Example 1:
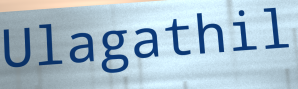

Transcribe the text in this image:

Ulagathil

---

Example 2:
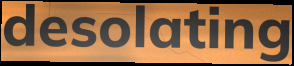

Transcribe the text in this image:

desolating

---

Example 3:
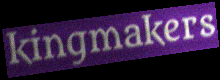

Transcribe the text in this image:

kingmakers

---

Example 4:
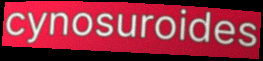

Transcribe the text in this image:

cynosuroides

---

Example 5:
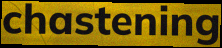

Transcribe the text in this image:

chastening